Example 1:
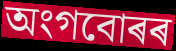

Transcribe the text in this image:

অংগবোৰৰ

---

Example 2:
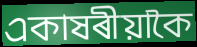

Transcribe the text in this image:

একাষৰীয়াকৈ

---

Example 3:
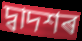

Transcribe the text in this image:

দ্বাদশৰ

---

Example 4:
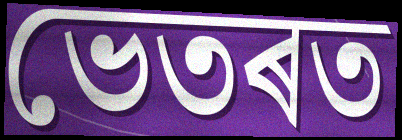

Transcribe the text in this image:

ভেতৰত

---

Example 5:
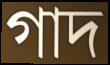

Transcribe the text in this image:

গাদ